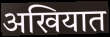
अखियात